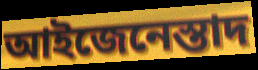
আইজেনেস্তাদ